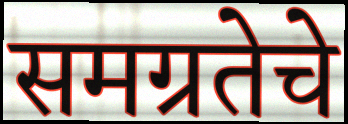
समग्रतेचे